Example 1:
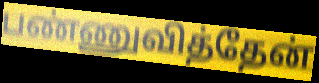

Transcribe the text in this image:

பண்ணுவித்தேன்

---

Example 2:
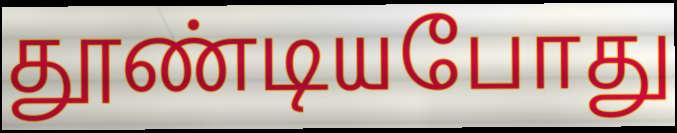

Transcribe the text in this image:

தூண்டியபோது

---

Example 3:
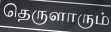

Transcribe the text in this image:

தெருளாரும்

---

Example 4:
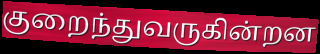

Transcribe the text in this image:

குறைந்துவருகின்றன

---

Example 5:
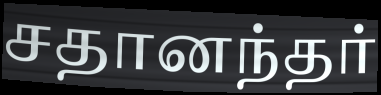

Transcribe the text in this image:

சதானந்தர்